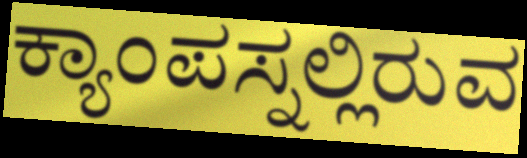
ಕ್ಯಾಂಪಸ್ನಲ್ಲಿರುವ